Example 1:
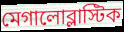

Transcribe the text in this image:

মেগালোব্লাস্টিক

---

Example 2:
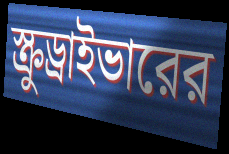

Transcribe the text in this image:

স্ক্রুড্রাইভারের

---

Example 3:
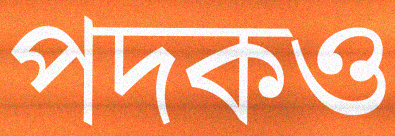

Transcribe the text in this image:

পদকও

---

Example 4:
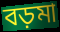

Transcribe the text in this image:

বড়মা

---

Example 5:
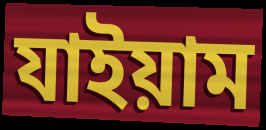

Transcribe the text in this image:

যাইয়াম